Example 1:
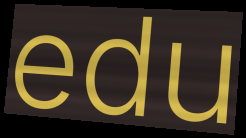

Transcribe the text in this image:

edu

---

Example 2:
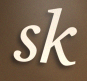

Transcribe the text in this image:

sk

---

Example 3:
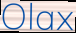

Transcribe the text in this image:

Olax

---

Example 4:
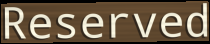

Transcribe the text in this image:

Reserved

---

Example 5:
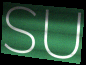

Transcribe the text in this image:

SU